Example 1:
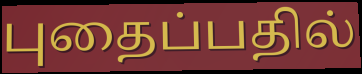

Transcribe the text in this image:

புதைப்பதில்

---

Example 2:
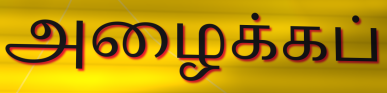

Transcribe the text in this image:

அழைக்கப்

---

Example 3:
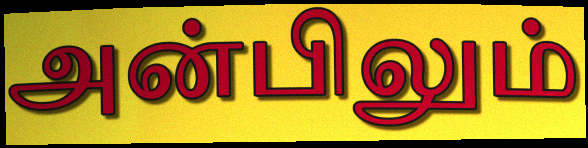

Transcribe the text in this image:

அன்பிலும்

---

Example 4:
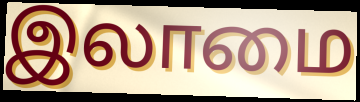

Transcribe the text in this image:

இலாமை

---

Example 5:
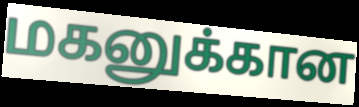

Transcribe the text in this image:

மகனுக்கான